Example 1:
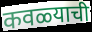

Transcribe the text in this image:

कवळ्याची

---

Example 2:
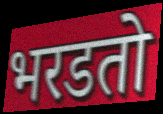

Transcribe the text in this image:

भरडतो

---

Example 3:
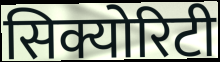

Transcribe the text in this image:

सिक्योरिटी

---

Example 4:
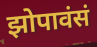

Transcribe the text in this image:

झोपावंसं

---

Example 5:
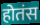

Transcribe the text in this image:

होतंस